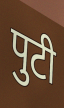
पुटी